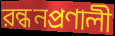
রন্ধনপ্রণালী